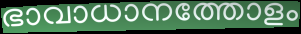
ഭാവാധാനത്തോളം